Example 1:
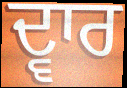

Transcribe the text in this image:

ਦ੍ਵਾਰ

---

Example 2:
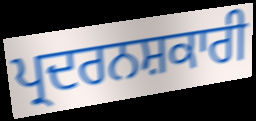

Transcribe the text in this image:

ਪ੍ਰਦਰਨਸ਼ਕਾਰੀ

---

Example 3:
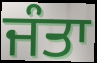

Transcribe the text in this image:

ਜੰਤਾ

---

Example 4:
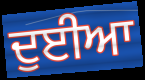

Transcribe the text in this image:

ਦੁਈਆ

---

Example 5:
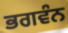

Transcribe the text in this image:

ਭਗਵੰਨ